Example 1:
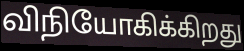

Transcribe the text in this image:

விநியோகிக்கிறது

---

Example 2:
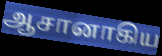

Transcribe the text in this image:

ஆசானாகிய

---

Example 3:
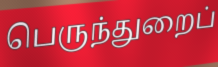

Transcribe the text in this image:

பெருந்துறைப்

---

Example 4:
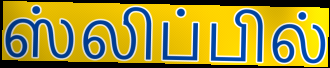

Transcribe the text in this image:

ஸ்லிப்பில்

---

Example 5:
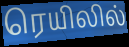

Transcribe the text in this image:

ரெயிலில்